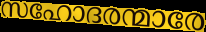
സഹോദരന്മാരേ